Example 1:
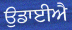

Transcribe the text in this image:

ਉਡਾਈਐ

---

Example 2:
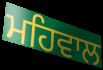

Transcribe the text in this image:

ਮਹਿਵਾਲ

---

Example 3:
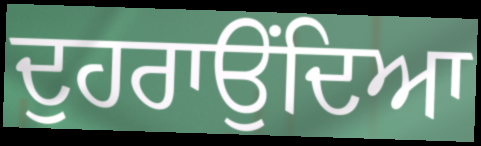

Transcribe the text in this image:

ਦੁਹਰਾਉਂਦਿਆ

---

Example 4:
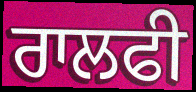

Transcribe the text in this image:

ਰਾਲਫੀ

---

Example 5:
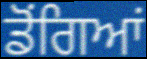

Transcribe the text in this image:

ਡੋਂਗਿਆਂ